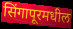
सिंगापूरमधील